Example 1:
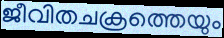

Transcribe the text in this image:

ജീവിതചക്രത്തെയും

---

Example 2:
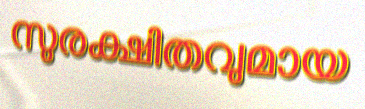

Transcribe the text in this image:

സുരക്ഷിതവുമായ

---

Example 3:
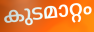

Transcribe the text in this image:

കുടമാറ്റം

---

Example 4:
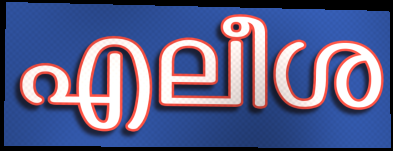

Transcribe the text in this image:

എലീശ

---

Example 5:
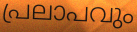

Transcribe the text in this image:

പ്രലാപവും